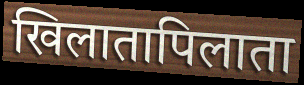
खिलातापिलाता